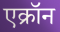
एक्रॉन